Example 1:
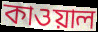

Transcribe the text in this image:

কাওয়াল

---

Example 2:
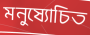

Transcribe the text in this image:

মনুষ্যোচিত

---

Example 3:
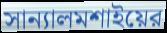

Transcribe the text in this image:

সান্যালমশাইয়ের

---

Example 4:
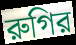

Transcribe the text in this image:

রুগির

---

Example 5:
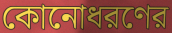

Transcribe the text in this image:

কোনোধরণের